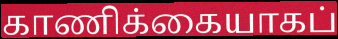
காணிக்கையாகப்